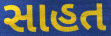
સાહત